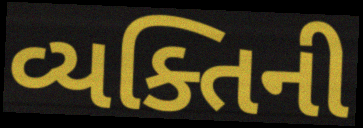
વ્યક્તિની